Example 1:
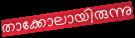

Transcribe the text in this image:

താക്കോലായിരുന്നു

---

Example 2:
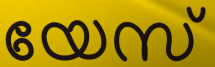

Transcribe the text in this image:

യേസ്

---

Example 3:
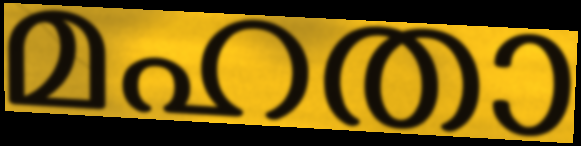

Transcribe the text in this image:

മഹതാ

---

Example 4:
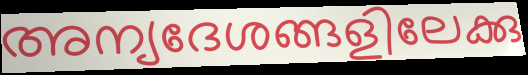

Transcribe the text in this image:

അന്യദേശങ്ങളിലേക്കു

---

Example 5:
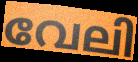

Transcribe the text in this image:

വേലി